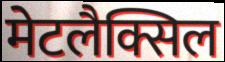
मेटलैक्सिल